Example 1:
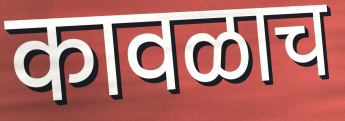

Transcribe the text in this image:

कावळाच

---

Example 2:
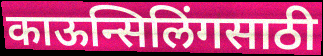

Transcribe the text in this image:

काऊन्सिलिंगसाठी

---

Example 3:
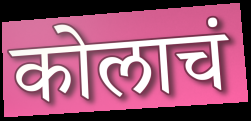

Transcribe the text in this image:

कोलाचं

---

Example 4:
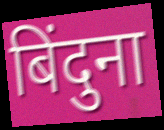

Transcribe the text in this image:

बिंदुना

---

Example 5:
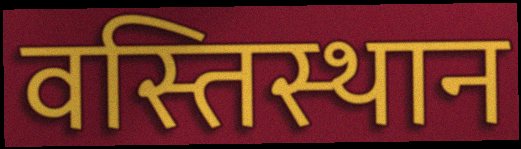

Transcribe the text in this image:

वस्तिस्थान